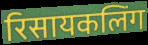
रिसायकलिंग